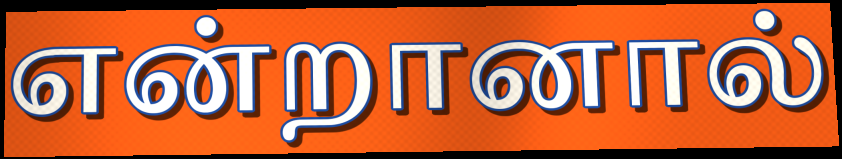
என்றானால்